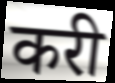
करी